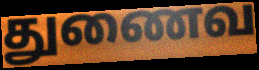
துணைவ